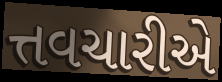
ત્તવચારીએ